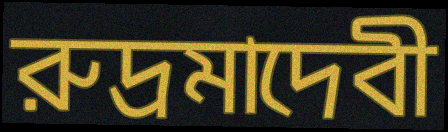
রুদ্রমাদেবী